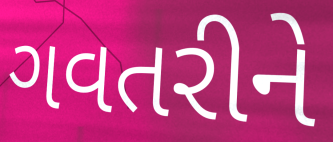
ગવતરીને